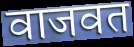
वाजवत